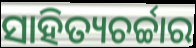
ସାହିତ୍ୟଚର୍ଚ୍ଚାର